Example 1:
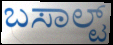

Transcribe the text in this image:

ಬಸಾಲ್ಟ್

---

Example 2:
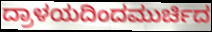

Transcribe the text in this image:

ದ್ರಾಳಯದಿಂದಮುರ್ಚಿದ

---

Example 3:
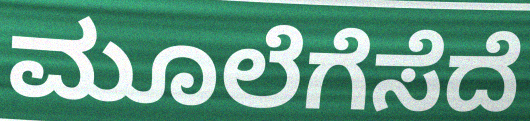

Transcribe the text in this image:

ಮೂಲೆಗೆಸೆದೆ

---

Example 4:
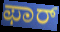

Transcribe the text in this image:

ಫಾರ್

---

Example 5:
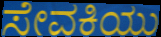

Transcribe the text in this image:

ಸೇವಕಿಯು